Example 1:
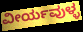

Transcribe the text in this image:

ವೀರ್ಯವುಳ್ಳ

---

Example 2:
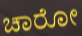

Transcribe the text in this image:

ಚಾರೋ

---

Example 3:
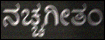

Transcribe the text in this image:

ನಚ್ಚಗೀತಂ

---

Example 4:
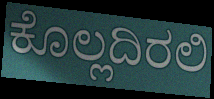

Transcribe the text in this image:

ಕೊಲ್ಲದಿರಲಿ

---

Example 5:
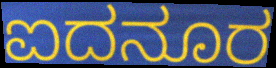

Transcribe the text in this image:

ಐದನೂರ